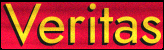
Veritas